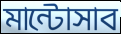
মান্টোসাব